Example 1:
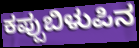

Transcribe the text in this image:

ಕಪ್ಪುಬಿಳುಪಿನ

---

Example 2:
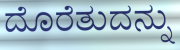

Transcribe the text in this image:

ದೊರೆತುದನ್ನು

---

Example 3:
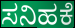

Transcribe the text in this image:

ಸನಿಹಕೆ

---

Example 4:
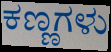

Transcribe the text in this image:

ಕಣ್ಣಗಳು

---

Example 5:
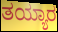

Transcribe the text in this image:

ತಯ್ಯಾರ